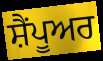
ਸ਼ੈਂਪੂਅਰ